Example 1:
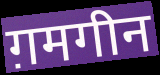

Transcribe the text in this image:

ग़मगीन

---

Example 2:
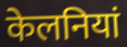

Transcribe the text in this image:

केलनियां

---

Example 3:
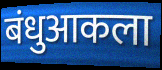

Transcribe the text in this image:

बंधुआकला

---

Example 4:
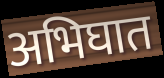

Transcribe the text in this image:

अभिघात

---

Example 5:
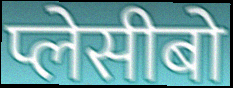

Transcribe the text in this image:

प्लेसीबो